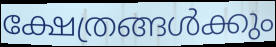
ക്ഷേത്രങ്ങൾക്കും